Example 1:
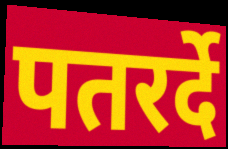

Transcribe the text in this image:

पतरर्दे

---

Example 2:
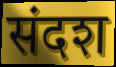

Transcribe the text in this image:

संदश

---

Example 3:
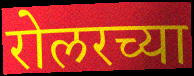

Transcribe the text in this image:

रोलरच्या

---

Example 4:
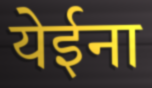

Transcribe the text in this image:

येईना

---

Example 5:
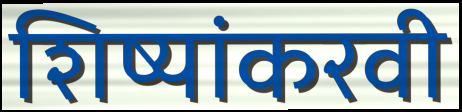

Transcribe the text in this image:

शिष्यांकरवी